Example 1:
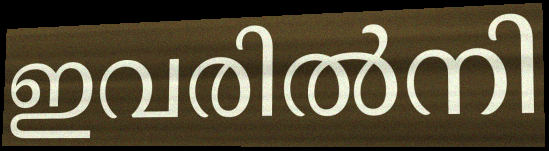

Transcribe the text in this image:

ഇവരിൽനി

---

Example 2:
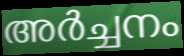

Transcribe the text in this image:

അർച്ചനം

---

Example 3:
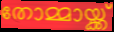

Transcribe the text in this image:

തോമ്മായ്ക്ക്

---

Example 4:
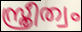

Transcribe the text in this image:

സ്ത്രീത്വം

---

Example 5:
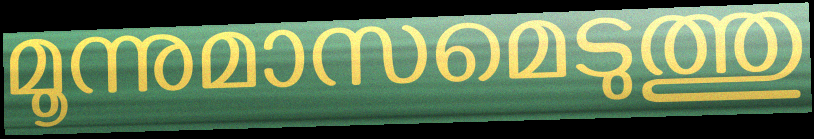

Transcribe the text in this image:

മൂന്നുമാസമെടുത്തു